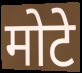
मोटे